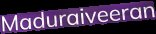
Maduraiveeran